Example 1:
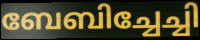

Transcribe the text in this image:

ബേബിച്ചേച്ചി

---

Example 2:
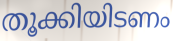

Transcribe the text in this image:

തൂക്കിയിടണം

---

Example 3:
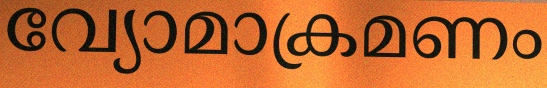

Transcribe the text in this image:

വ്യോമാക്രമണം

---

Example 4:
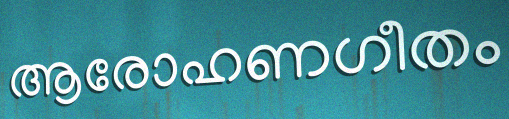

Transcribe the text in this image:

ആരോഹണഗീതം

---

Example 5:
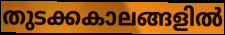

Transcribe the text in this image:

തുടക്കകാലങ്ങളിൽ